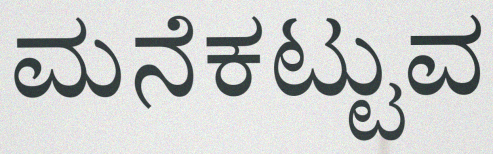
ಮನೆಕಟ್ಟುವ